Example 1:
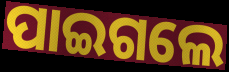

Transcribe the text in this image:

ପାଇଗଲେ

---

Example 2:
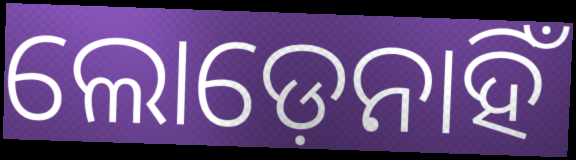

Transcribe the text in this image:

ଲୋଡ଼େନାହିଁ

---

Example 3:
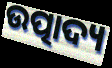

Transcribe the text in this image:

ଉତ୍ପାଦ୍ୟ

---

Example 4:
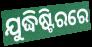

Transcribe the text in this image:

ଯୁଦ୍ଧିଷ୍ଟିରରେ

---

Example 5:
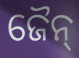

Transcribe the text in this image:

ଜୈନ୍